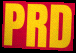
PRD